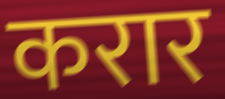
करार